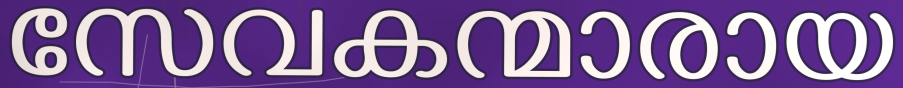
സേവകന്മാരായ